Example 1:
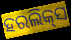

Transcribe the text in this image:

ହରଲିକ୍‌ସ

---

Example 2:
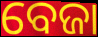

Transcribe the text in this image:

ବେଜା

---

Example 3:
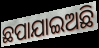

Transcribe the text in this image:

ଛପାଯାଇଅଛି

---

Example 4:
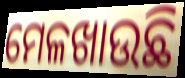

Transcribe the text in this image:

ମେଳଖାଉଛି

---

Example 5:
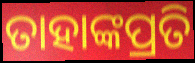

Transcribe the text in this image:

ତାହାଙ୍କପ୍ରତି